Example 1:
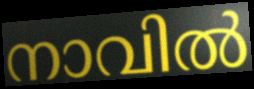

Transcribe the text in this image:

നാവിൽ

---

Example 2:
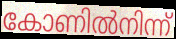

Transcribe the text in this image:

കോണിൽനിന്ന്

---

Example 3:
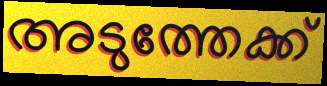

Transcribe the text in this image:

അടുത്തേക്ക്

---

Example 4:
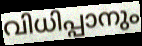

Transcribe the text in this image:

വിധിപ്പാനും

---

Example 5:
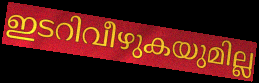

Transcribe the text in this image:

ഇടറിവീഴുകയുമില്ല